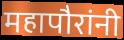
महापौरांनी